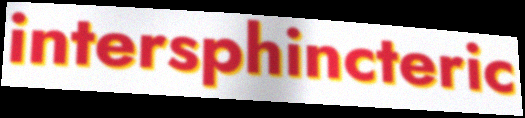
intersphincteric